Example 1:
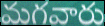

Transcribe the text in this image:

మగవారు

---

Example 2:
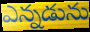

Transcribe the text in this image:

ఎన్నడును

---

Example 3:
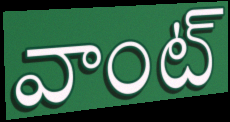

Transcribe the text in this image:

వాంట్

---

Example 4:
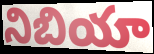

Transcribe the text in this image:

నిబియా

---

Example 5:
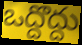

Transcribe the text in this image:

ఒద్దొద్దు